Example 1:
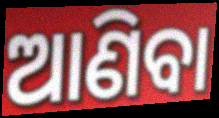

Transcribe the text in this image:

ଆଣିବା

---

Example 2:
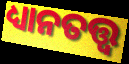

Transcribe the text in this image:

ଧ୍ୟାନତତ୍ତ୍ୱ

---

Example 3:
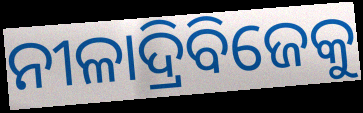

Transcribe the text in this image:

ନୀଳାଦ୍ରିବିଜେକୁ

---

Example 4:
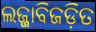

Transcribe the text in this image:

ଲଜ୍ଜାବିଜଡ଼ିତ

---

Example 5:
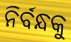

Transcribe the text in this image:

ନିର୍ବନ୍ଧକୁ